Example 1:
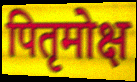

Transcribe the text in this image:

पितृमोक्ष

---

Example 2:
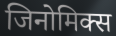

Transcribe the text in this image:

जिनोमिक्स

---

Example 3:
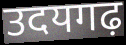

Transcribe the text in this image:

उदयगढ़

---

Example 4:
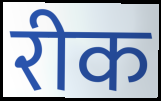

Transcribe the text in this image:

रीक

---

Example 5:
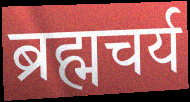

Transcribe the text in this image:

ब्रह्मचर्य